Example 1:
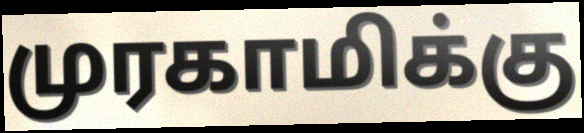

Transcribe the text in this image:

முரகாமிக்கு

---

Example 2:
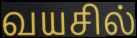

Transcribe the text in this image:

வயசில்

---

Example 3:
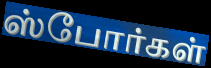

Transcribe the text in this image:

ஸ்போர்கள்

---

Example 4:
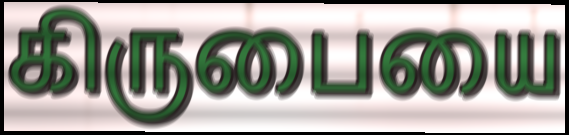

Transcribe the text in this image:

கிருபையை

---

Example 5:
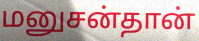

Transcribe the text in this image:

மனுசன்தான்